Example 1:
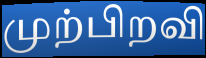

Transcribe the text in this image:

முற்பிறவி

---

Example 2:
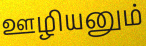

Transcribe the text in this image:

ஊழியனும்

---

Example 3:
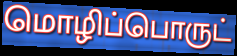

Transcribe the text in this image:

மொழிப்பொருட்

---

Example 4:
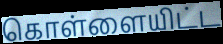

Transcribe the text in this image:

கொள்ளையிட்ட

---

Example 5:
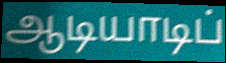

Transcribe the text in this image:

ஆடியாடிப்